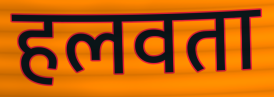
हलवता